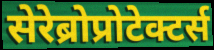
सेरेब्रोप्रोटेक्टर्स